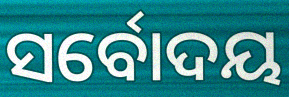
ସର୍ବୋଦୟ